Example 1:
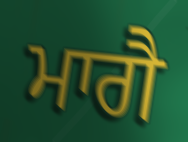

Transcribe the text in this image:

ਮਾਗੈ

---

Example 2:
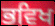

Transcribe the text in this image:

ਭਵਿਖ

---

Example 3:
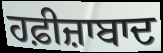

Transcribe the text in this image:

ਹਫ਼ੀਜ਼ਾਬਾਦ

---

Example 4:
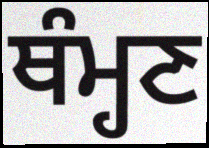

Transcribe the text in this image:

ਥੰਮ੍ਹਣ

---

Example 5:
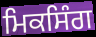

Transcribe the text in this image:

ਮਿਕਸਿੰਗ